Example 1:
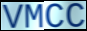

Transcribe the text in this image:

VMCC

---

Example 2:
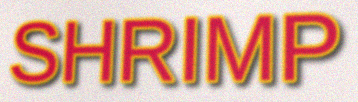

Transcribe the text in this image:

SHRIMP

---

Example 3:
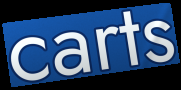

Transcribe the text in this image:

carts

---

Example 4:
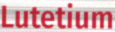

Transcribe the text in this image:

Lutetium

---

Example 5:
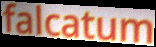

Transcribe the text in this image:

falcatum